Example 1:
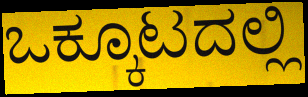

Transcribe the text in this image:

ಒಕ್ಕೂಟದಲ್ಲಿ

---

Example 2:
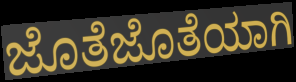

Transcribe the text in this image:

ಜೊತೆಜೊತೆಯಾಗಿ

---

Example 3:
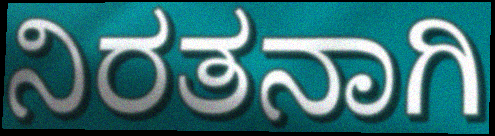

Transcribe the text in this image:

ನಿರತನಾಗಿ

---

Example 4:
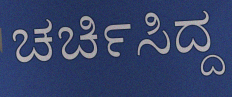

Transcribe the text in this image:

ಚರ್ಚಿಸಿದ್ದ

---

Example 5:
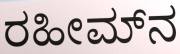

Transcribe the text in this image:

ರಹೀಮ್‌ನ